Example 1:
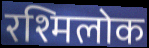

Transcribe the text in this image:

रश्मिलोक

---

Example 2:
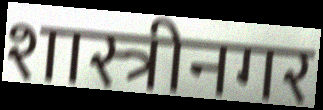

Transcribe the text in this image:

शास्त्रीनगर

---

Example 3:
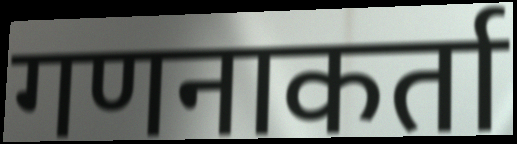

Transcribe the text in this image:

गणनाकर्ता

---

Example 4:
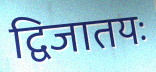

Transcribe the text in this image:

द्विजातयः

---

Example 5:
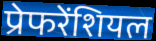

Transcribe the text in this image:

प्रेफरेंशियल